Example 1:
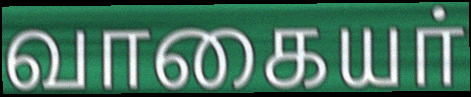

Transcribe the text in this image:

வாகையர்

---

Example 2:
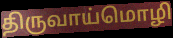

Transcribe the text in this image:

திருவாய்மொழி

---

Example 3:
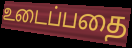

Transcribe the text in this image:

உடைப்பதை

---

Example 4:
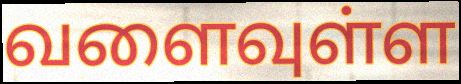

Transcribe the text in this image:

வளைவுள்ள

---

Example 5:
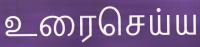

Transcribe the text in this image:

உரைசெய்ய